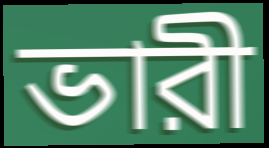
ভারী